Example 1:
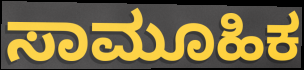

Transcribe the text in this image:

ಸಾಮೂಹಿಕ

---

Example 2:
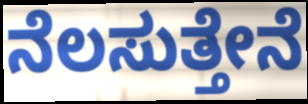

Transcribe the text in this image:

ನೆಲಸುತ್ತೇನೆ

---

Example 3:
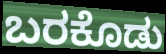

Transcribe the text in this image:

ಬರಕೊಡು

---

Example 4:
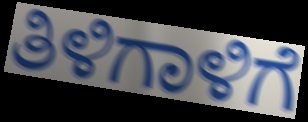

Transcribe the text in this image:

ತಿಳಿಗಾಳಿಗೆ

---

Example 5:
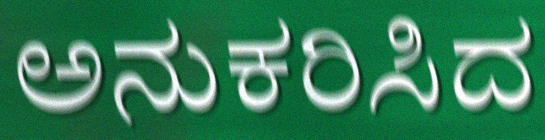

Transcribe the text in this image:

ಅನುಕರಿಸಿದ